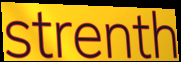
strenth